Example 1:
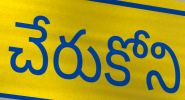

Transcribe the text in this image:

చేరుకోని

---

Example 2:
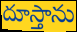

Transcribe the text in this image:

దూస్తాను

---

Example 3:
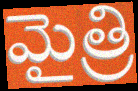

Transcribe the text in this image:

మైత్రి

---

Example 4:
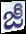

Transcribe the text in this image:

జీ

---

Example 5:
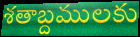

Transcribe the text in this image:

శతాబ్దములకు